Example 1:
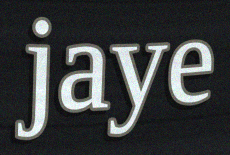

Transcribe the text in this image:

jaye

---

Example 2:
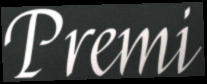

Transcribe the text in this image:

Premi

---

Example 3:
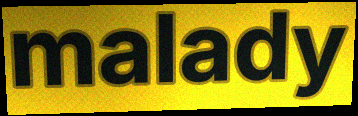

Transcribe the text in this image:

malady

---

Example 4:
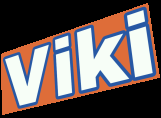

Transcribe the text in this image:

Viki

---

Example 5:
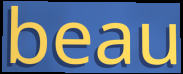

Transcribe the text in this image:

beau